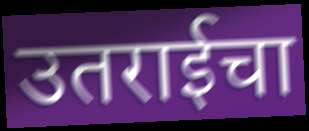
उतराईचा